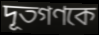
দূতগণকে